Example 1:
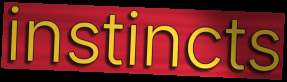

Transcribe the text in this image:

instincts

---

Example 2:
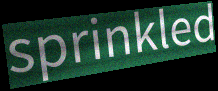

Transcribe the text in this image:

sprinkled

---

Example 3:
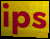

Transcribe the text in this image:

ips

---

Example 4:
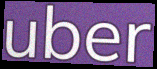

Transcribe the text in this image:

uber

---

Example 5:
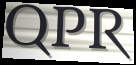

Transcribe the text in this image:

QPR